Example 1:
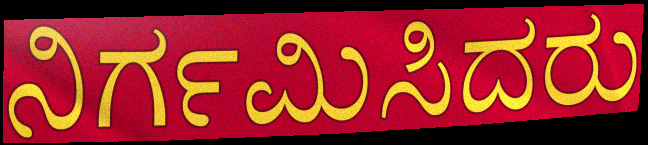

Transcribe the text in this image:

ನಿರ್ಗಮಿಸಿದರು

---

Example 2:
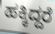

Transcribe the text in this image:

ಹಕ್ಕಿದ್ದರೆ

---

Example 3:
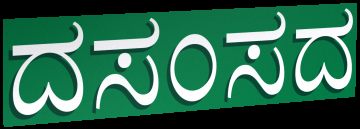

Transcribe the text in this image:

ದಸಂಸದ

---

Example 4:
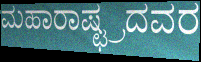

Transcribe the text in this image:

ಮಹಾರಾಷ್ಟ್ರದವರ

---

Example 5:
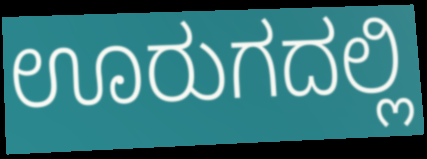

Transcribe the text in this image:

ಊರುಗದಲ್ಲಿ